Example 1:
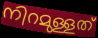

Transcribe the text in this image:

നിറമുള്ളത്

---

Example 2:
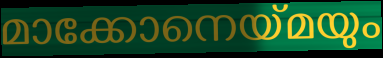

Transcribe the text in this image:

മാക്കോനെയ്മയും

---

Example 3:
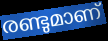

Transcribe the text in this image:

രണ്ടുമാണ്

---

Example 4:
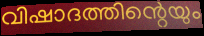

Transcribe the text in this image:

വിഷാദത്തിന്റെയും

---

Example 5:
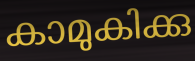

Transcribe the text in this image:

കാമുകിക്കു